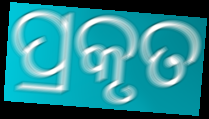
ପ୍ରକୃତ